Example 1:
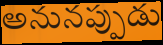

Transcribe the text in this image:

అనునప్పుడు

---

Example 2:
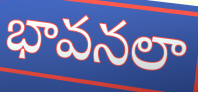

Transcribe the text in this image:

భావనలా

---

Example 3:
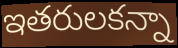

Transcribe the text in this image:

ఇతరులకన్నా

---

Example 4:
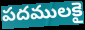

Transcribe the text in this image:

పదములకై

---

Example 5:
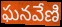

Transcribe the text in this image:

ఘనవేణి